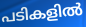
പടികളിൽ